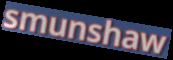
smunshaw